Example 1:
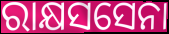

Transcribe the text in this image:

ରାକ୍ଷସସେନା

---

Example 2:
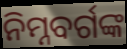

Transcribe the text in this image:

ନିମ୍ନବର୍ଗଙ୍କ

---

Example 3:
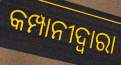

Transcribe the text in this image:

କମ୍ପାନୀଦ୍ୱାରା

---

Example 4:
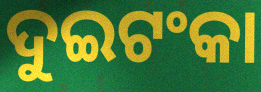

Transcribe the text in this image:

ଦୁଇଟଂକା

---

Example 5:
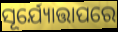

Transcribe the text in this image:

ସୂର୍ଯ୍ୟୋତ୍ତାପରେ